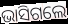
ଭାସିଗଲେ